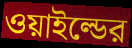
ওয়াইল্ডের